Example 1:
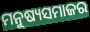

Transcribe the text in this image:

ମନୁଷ୍ୟସମାଜର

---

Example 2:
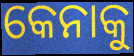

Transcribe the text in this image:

କେନାକୁ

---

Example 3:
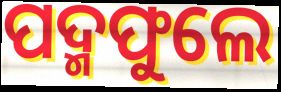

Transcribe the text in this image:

ପଦ୍ମଫୁଲେ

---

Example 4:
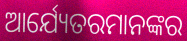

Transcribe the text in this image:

ଆର୍ଯ୍ୟେତରମାନଙ୍କର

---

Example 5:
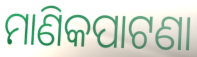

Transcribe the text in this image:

ମାଣିକପାଟଣା